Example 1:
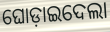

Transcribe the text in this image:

ଘୋଡ଼ାଇଦେଲା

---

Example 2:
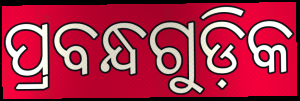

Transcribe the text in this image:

ପ୍ରବନ୍ଧଗୁଡ଼ିକ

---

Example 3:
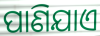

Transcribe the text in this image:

ପାଣିଯାଏ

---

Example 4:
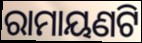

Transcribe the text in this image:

ରାମାୟଣଟି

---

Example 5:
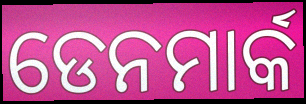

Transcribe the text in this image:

ଡେନମାର୍କ